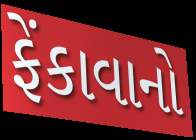
ફેંકાવાનો